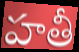
హతీ